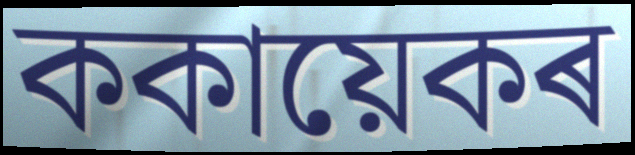
ককায়েকৰ